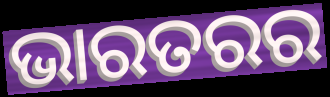
ଭାରତରର